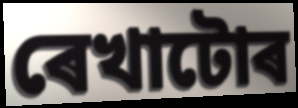
ৰেখাটোৰ